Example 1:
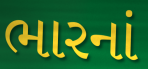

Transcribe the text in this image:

ભારનાં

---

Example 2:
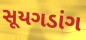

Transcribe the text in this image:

સૂયગડાંગ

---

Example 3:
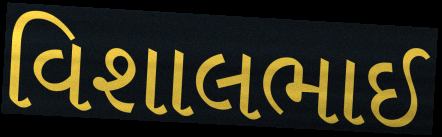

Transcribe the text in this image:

વિશાલભાઈ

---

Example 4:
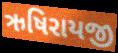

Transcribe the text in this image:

ઋષિરાયજી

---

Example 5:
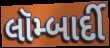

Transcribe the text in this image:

લૉમ્બાર્દી